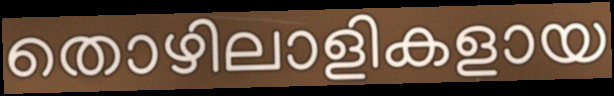
തൊഴിലാളികളായ